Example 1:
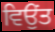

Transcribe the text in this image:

ਵਿਉਂਤ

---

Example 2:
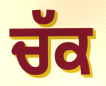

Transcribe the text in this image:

ਚੱਕ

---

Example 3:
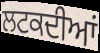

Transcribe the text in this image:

ਲਟਕਦੀਆਂ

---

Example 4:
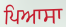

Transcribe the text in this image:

ਪਿਆਸਾ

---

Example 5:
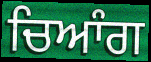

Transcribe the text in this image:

ਚਿਆੰਗ